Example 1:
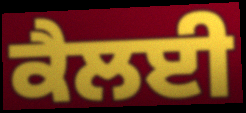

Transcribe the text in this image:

ਕੈਲਈ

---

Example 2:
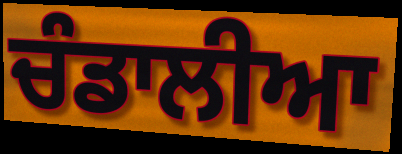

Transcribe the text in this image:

ਚੰਡਾਲੀਆ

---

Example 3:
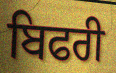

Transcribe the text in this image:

ਬਿਫਰੀ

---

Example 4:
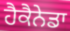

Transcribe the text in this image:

ਹੈਕੈਨੇਡਾ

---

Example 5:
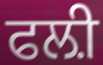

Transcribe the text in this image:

ਫਲ਼ੀ